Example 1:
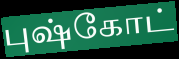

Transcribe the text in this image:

புஷ்கோட்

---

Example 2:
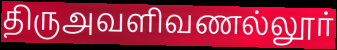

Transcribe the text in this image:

திருஅவளிவணல்லூர்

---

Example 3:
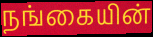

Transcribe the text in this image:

நங்கையின்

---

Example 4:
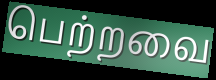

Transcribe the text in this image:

பெற்றவை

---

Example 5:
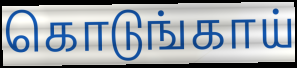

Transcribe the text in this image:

கொடுங்காய்